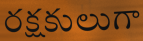
రక్షకులుగా